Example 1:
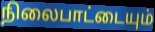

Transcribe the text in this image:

நிலைபாட்டையும்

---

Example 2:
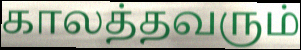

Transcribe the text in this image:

காலத்தவரும்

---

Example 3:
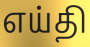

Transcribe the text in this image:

எய்தி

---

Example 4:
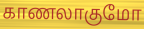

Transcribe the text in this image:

காணலாகுமோ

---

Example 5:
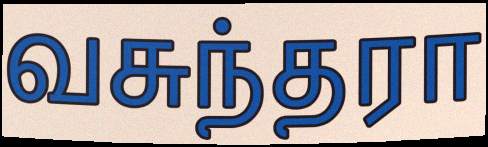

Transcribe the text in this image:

வசுந்தரா